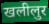
खलीलुर